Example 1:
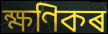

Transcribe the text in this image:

ক্ষণিকৰ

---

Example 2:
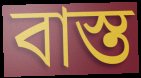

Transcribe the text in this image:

বাস্ত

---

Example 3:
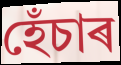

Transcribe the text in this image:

হেঁচাৰ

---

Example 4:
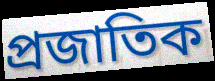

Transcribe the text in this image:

প্ৰজাতিক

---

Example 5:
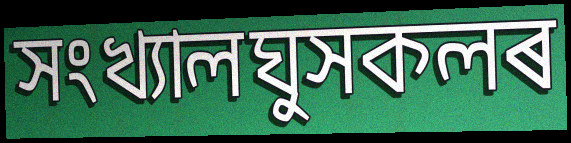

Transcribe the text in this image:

সংখ্যালঘুসকলৰ